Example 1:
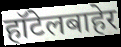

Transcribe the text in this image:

हॉटेलबाहेर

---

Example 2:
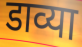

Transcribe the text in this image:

डाव्या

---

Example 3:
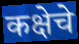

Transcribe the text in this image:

कक्षेचे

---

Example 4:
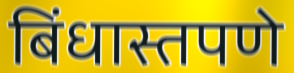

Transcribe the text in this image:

बिंधास्तपणे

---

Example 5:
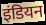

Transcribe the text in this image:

इंडियन